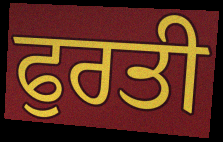
ਫੁਰਤੀ